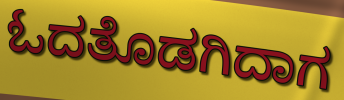
ಓದತೊಡಗಿದಾಗ